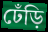
ঢেঁড়ি